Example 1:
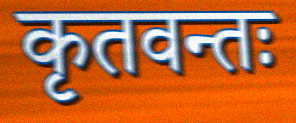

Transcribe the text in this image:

कृतवन्तः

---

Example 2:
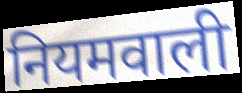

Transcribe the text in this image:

नियमवाली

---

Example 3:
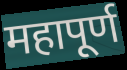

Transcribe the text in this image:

महापूर्ण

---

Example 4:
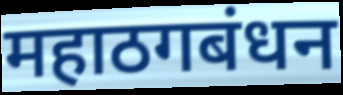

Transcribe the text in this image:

महाठगबंधन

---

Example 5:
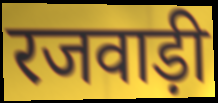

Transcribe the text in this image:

रजवाड़ी